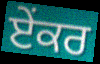
ਏੰਕਰ